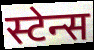
स्टेन्स